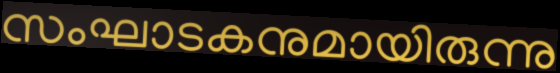
സംഘാടകനുമായിരുന്നു